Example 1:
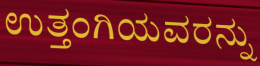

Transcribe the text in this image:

ಉತ್ತಂಗಿಯವರನ್ನು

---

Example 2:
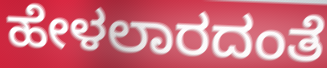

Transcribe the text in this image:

ಹೇಳಲಾರದಂತೆ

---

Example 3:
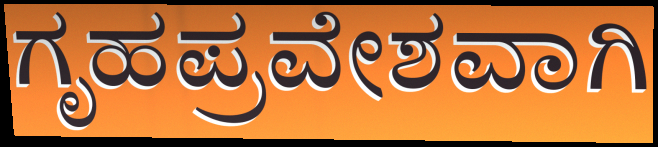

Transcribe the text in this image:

ಗೃಹಪ್ರವೇಶವಾಗಿ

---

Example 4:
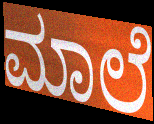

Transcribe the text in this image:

ಮಾಲೆ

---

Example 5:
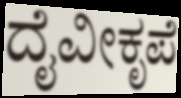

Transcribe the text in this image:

ದೈವೀಕೃಪೆ